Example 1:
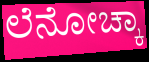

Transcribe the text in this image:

ಲೆನೋಚ್ಕಾ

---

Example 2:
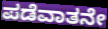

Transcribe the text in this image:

ಪಡೆವಾತನೇ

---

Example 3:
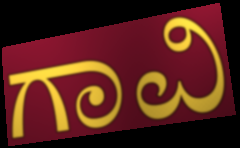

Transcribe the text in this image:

ಗಾವಿ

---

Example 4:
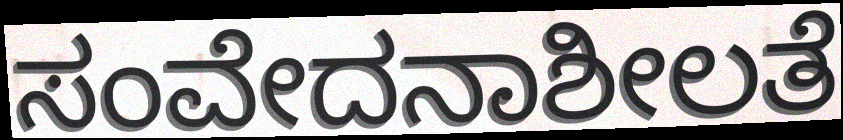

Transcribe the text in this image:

ಸಂವೇದನಾಶೀಲತೆ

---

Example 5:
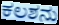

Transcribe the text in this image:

ಕಲಶನು